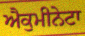
ਐਕੁਮੀਨੇਟਾ